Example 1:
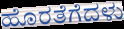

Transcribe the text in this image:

ಹೊರತೆಗೆದಳು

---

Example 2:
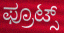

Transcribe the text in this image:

ಫ್ರೂಟ್ಸ್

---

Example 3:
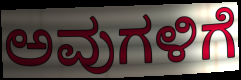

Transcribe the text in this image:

ಅವುಗಳಿಗೆ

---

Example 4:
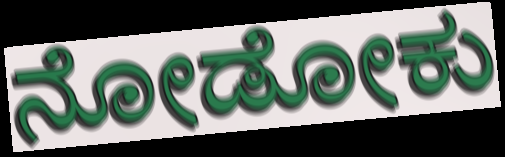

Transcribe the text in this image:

ನೋಡೋಕು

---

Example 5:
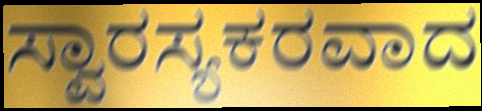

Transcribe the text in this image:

ಸ್ವಾರಸ್ಯಕರವಾದ